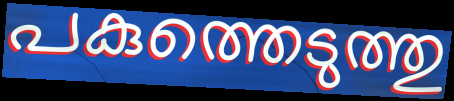
പകുത്തെടുത്തു